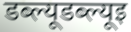
डब्ल्यूडब्ल्यूइ